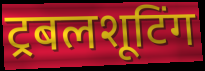
ट्रबलशूटिंग